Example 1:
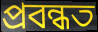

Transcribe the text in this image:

প্ৰবন্ধত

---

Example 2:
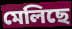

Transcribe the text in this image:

মেলিছে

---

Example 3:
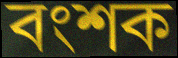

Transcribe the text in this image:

বংশক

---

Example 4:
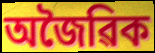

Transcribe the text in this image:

অজৈৱিক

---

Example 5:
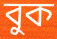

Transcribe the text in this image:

বুক